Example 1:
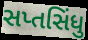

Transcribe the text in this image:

સપ્તસિંધુ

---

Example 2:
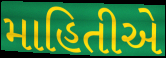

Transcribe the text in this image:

માહિતીએ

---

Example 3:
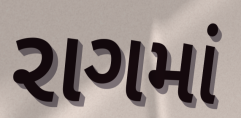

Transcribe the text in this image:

રાગમાં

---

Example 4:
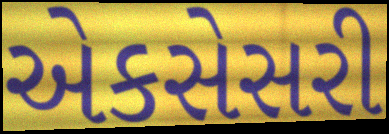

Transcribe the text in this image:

એકસેસરી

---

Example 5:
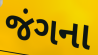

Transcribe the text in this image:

જંગના